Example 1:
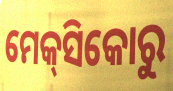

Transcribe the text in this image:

ମେକ୍‌ସିକୋରୁ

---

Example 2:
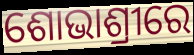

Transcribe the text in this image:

ଶୋଭାଶ୍ରୀରେ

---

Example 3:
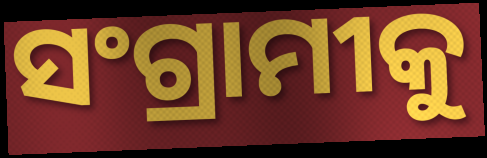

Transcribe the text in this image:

ସଂଗ୍ରାମୀକୁ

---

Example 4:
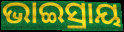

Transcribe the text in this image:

ଭାଇସ୍ରାୟ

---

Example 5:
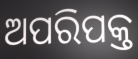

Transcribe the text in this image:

ଅପରିପକ୍ତ